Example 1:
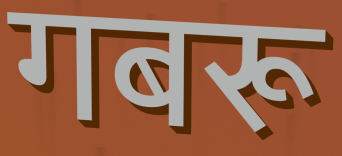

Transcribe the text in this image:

गबरू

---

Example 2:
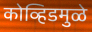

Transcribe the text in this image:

कोव्हिडमुळे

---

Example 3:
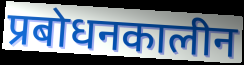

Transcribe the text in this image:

प्रबोधनकालीन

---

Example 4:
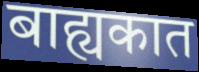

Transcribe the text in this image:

बाह्यकात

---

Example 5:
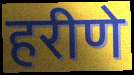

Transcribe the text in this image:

हरीणे